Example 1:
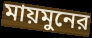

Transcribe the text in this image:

মায়মুনের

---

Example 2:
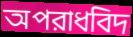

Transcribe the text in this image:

অপরাধবিদ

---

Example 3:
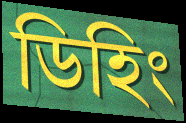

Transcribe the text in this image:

ডিহিং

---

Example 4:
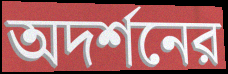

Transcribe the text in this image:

অদর্শনের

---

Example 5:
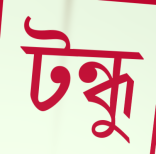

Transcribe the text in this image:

টন্ধু